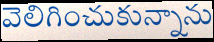
వెలిగించుకున్నాను